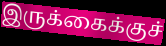
இருக்கைக்குச்